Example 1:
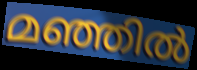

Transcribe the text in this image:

മഞ്ഞിൽ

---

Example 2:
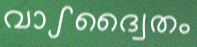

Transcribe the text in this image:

വാഽദ്വൈതം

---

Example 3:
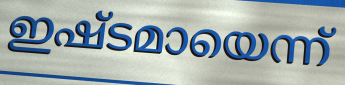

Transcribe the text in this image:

ഇഷ്ടമായെന്ന്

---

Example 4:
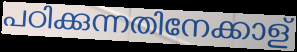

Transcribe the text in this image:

പഠിക്കുന്നതിനേക്കാള്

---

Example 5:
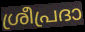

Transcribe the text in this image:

ശ്രീപ്രദാ